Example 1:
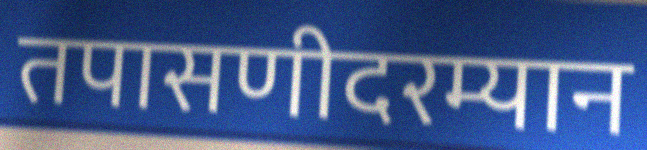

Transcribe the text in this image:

तपासणीदरम्यान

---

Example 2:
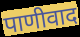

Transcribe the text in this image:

पाणीवाद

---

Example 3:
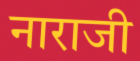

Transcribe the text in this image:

नाराजी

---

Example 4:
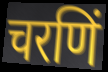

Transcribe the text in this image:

चरणिं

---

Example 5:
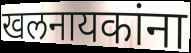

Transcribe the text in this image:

खलनायकांना